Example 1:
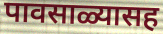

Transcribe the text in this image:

पावसाळ्यासह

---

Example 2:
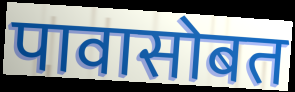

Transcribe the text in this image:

पावासोबत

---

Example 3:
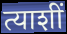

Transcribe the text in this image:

त्याशीं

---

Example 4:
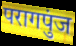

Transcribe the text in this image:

परागपुंज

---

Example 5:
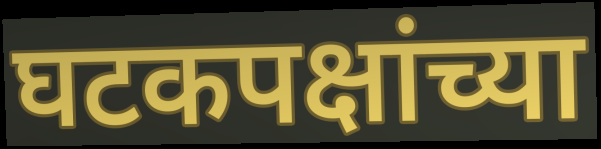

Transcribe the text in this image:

घटकपक्षांच्या